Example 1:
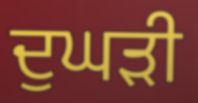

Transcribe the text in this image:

ਦੁਘੜੀ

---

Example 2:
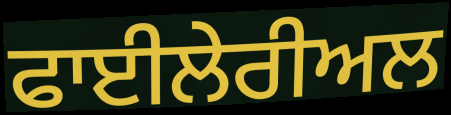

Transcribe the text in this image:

ਫਾਈਲੇਰੀਅਲ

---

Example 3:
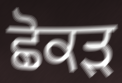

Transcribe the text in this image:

ਛੋਕੜ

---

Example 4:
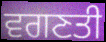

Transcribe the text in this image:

ਵਗਣਤੀ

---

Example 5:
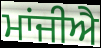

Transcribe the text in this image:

ਮਾਂਜੀਐ